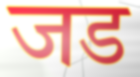
जड